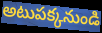
అటుపక్కనుండి